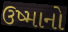
ઉષ્માનો